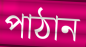
পাঠান